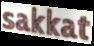
sakkat